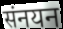
संनयन